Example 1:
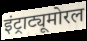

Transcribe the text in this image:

इंट्राट्यूमोरल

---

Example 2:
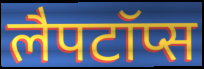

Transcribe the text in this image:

लैपटॉप्‍स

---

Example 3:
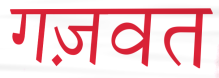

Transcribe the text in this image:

गज़वत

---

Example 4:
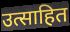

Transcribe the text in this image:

उत्साहित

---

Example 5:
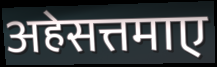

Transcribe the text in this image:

अहेसत्तमाए